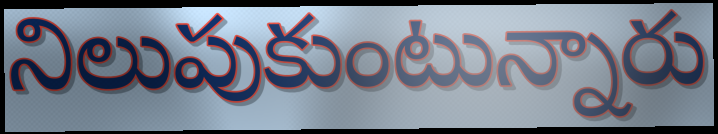
నిలుపుకుంటున్నారు